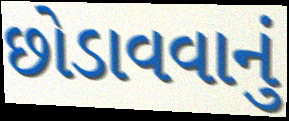
છોડાવવાનું